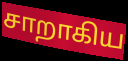
சாறாகிய